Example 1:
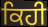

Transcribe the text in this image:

ਕਿਹੀ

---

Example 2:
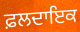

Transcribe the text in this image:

ਫ਼ਲਦਾਇਕ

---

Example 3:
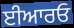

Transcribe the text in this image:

ਈਆਰਓ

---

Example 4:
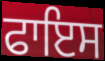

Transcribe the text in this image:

ਫਾਇਸ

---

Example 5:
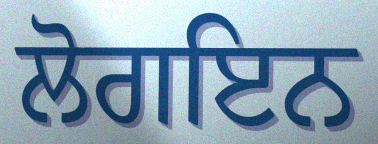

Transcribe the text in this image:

ਲੋਗਇਨ